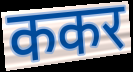
ककर